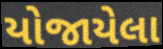
યોજાયેલા